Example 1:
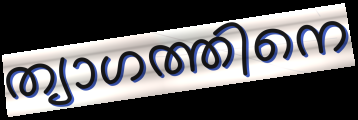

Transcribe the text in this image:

ത്യാഗത്തിനെ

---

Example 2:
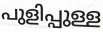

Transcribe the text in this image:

പുളിപ്പുള്ള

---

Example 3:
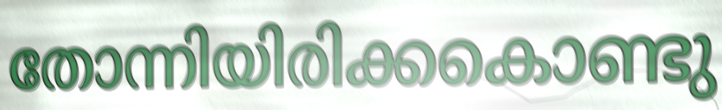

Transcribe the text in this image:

തോന്നിയിരിക്കകൊണ്ടു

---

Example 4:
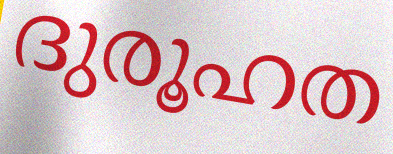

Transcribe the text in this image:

ദുരൂഹത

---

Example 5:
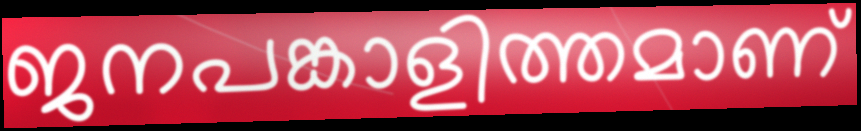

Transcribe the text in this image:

ജനപങ്കാളിത്തമാണ്